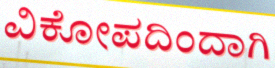
ವಿಕೋಪದಿಂದಾಗಿ